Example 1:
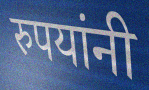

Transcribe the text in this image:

रुपयांनी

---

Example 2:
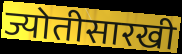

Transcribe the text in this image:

ज्योतीसारखी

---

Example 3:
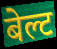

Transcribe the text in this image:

बेल्ट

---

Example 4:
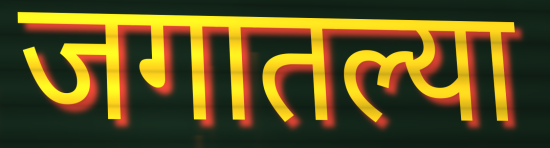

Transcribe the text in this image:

जगातल्या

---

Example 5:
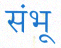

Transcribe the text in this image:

संभू